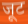
जूट